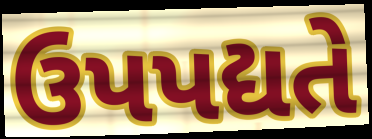
ઉપપદ્યતે